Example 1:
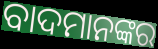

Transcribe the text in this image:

ବାଦମାନଙ୍କର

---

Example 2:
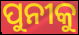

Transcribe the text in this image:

ପୁନୀକୁ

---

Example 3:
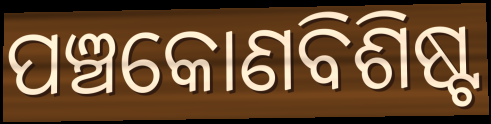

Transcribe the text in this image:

ପଞ୍ଚକୋଣବିଶିଷ୍ଟ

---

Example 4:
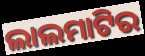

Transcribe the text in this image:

ଲାଲମାଟିର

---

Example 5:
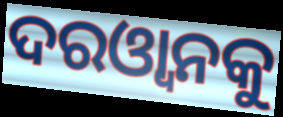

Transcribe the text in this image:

ଦରଓ୍ୱାନକୁ